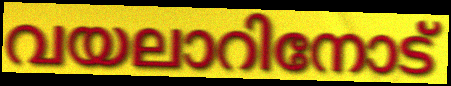
വയലാറിനോട്